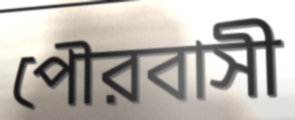
পৌরবাসী